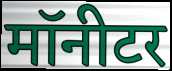
मॉनीटर